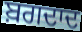
ਬ਼ਗਦਾਦ